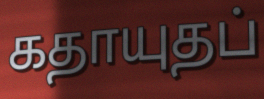
கதாயுதப்